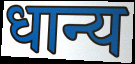
धान्य